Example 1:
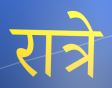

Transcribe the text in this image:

रात्रे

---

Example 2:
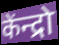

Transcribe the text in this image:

केंन्द्रो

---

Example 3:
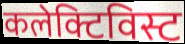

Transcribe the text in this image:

कलेक्टिविस्ट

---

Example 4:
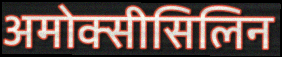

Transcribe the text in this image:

अमोक्सीसिलिन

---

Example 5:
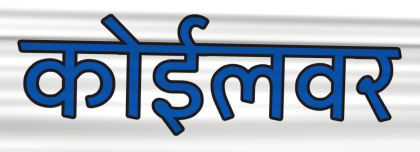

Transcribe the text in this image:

कोईलवर